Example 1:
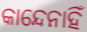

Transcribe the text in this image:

କାନ୍ଦେନାହିଁ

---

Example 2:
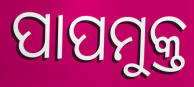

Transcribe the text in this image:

ପାପମୁକ୍ତ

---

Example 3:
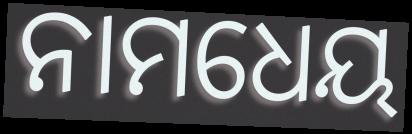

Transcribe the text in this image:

ନାମଧେୟ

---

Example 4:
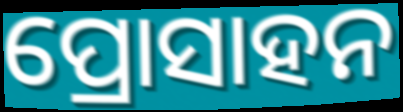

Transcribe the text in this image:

ପ୍ରୋସାହନ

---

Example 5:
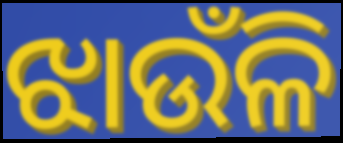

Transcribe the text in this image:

ଝାଉଁଳି